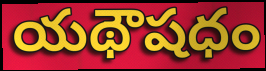
యథౌషధం